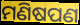
ମଣିଷପଣ